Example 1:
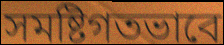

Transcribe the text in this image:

সমষ্টিগতভাবে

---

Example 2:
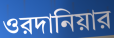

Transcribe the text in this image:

ওরদানিয়ার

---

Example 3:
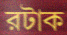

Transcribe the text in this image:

রটাক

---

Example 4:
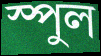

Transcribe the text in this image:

স্পুল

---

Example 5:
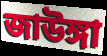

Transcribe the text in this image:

জাউঙ্গা